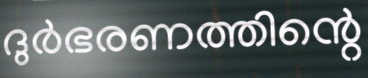
ദുർഭരണത്തിന്റെ